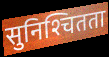
सुनिश्चितता